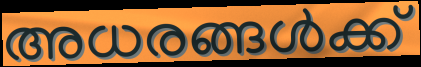
അധരങ്ങൾക്ക്